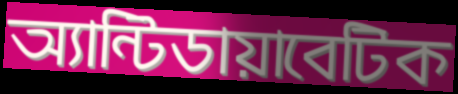
অ্যান্টিডায়াবেটিক